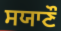
ਸਯਾਣੌ